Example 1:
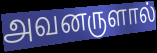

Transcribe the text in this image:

அவனருளால்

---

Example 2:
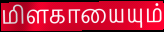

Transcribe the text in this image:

மிளகாயையும்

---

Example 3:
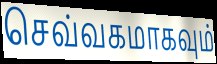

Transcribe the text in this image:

செவ்வகமாகவும்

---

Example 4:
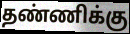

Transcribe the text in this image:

தண்ணிக்கு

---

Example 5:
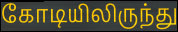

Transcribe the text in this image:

கோடியிலிருந்து